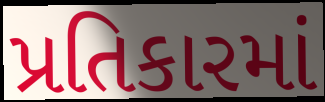
પ્રતિકારમાં